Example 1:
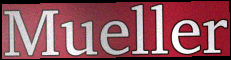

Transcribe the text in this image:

Mueller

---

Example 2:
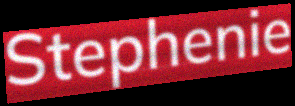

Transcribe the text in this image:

Stephenie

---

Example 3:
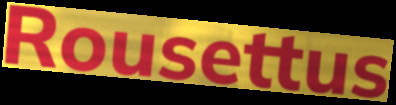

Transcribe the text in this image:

Rousettus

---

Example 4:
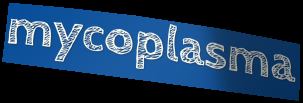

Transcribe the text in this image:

mycoplasma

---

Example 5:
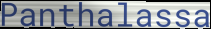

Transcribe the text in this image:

Panthalassa